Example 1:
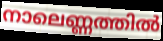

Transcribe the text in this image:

നാലെണ്ണത്തിൽ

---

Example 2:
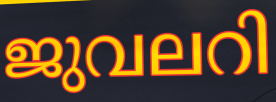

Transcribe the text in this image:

ജുവലറി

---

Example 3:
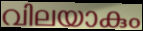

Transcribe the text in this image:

വിലയാകും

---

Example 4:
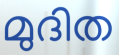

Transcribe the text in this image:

മുദിത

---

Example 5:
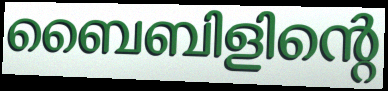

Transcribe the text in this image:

ബൈബിളിന്റെ